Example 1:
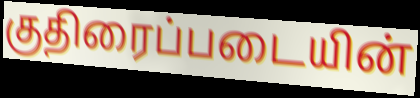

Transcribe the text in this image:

குதிரைப்படையின்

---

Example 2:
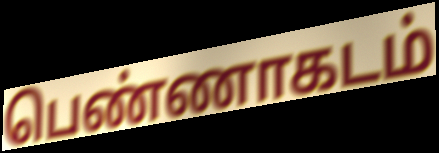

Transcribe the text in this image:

பெண்ணாகடம்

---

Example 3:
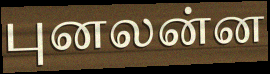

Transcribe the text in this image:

புனலன்ன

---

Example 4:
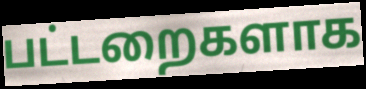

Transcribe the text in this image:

பட்டறைகளாக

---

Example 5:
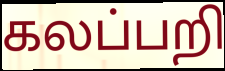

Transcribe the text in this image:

கலப்பறி